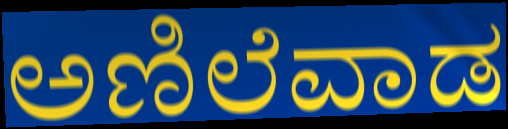
ಅಣಿಲೆವಾಡ